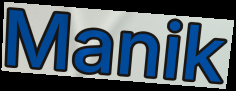
Manik